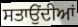
ਸਤਾਉਂਦੀਆਂ